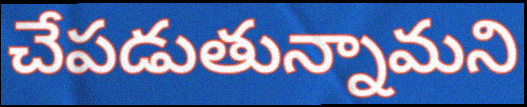
చేపడుతున్నామని